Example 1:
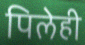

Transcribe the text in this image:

पिलेही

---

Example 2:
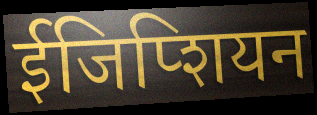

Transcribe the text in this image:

ईजिप्शियन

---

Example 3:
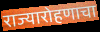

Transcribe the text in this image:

राज्यारोहणाचा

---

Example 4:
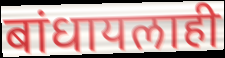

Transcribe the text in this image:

बांधायलाही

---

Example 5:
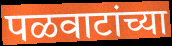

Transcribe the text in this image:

पळवाटांच्या